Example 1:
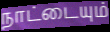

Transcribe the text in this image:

நாட்டையும்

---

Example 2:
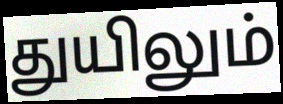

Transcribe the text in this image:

துயிலும்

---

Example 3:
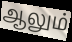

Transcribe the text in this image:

ஆலும்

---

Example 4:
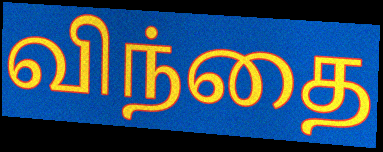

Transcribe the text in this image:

விந்தை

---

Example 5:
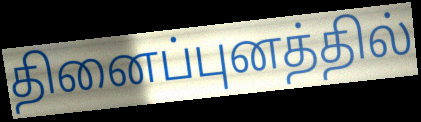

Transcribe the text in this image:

தினைப்புனத்தில்